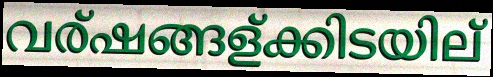
വര്ഷങ്ങള്ക്കിടയില്